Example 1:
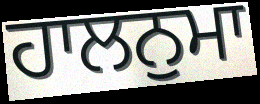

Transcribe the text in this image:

ਹਾਲਨੁਮਾ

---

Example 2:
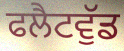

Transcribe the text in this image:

ਫਲੈਟਵੁੱਡ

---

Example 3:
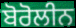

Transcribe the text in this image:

ਬੋਰੋਲੀਨ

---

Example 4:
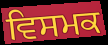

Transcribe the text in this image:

ਵਿਸਮਕ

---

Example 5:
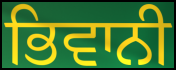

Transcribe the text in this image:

ਭਿਵਾਨੀ